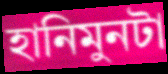
হানিমুনটা